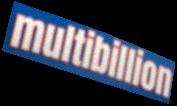
multibillion